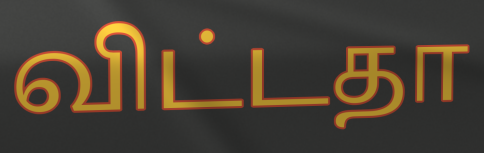
விட்டதா